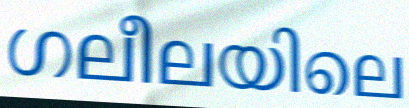
ഗലീലയിലെ